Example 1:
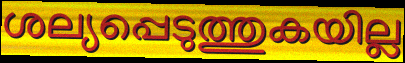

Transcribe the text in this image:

ശല്യപ്പെടുത്തുകയില്ല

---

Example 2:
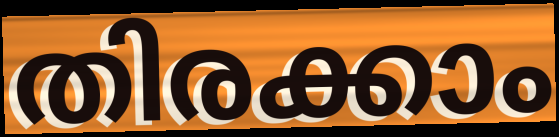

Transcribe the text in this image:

തിരക്കാം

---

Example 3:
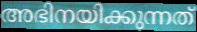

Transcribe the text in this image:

അഭിനയിക്കുന്നത്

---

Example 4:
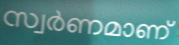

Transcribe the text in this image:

സ്വർണമാണ്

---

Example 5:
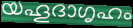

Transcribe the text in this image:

യഹൂദാഗൃഹം